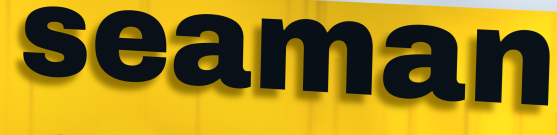
seaman